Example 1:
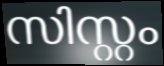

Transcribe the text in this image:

സിസ്റ്റം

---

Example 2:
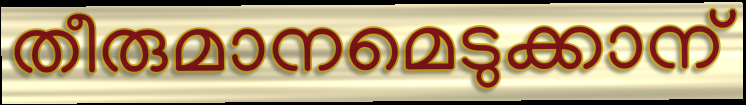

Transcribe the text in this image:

തീരുമാനമെടുക്കാന്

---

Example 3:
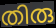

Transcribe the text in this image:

തിരു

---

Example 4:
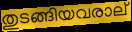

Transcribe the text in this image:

തുടങ്ങിയവരാല്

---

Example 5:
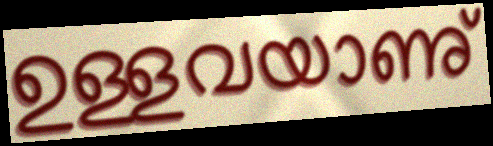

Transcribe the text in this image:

ഉള്ളവയാണു്